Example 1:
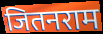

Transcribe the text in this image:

जितनराम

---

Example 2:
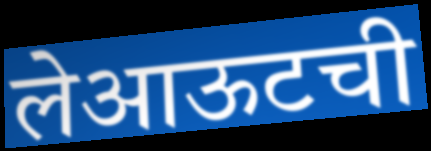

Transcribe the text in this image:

लेआऊटची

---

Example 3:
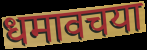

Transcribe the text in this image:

धमावचया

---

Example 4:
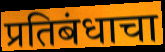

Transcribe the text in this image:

प्रतिबंधाचा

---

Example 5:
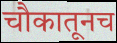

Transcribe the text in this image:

चौकातूनच